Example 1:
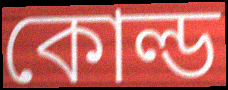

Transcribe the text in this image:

কোল্ড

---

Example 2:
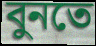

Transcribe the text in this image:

বুনতে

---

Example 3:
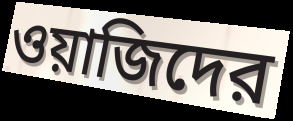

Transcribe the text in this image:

ওয়াজিদের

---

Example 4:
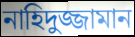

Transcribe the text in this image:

নাহিদুজ্জামান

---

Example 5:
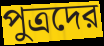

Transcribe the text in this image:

পুত্রদের